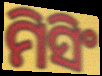
ମିସିଂ